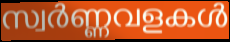
സ്വർണ്ണവളകൾ